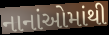
નાનાંઓમાંથી